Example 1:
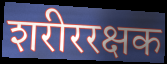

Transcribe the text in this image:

शरीररक्षक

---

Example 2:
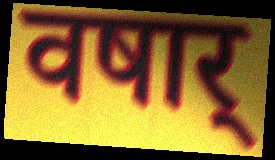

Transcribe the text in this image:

वषार्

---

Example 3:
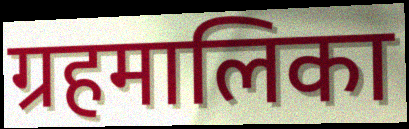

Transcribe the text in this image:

ग्रहमालिका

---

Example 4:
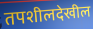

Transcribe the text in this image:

तपशीलदेखील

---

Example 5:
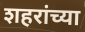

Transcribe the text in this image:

शहरांच्या